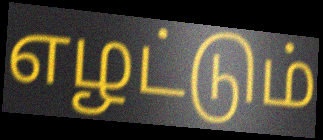
எழட்டும்